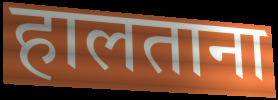
हालताना